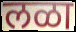
लळा